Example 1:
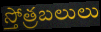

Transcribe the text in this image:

స్తోత్రబలులు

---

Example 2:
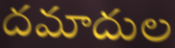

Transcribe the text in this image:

దమాదుల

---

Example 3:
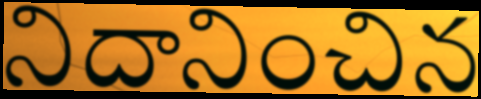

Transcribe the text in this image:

నిదానించిన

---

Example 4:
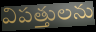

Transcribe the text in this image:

విపత్తులను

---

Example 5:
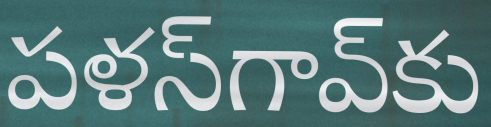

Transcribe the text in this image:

పళస్‌గావ్‌కు